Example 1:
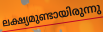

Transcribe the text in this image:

ലക്ഷ്യമുണ്ടായിരുന്നു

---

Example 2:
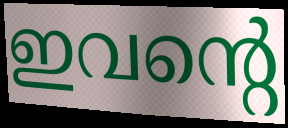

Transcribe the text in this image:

ഇവന്റെ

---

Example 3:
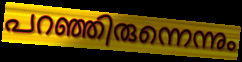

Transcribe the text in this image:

പറഞ്ഞിരുന്നെന്നും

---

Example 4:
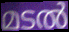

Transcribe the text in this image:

മടൽ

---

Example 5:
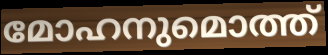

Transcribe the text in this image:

മോഹനുമൊത്ത്